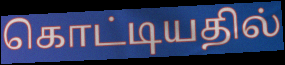
கொட்டியதில்